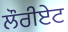
ਲੌਰੀਏਟ